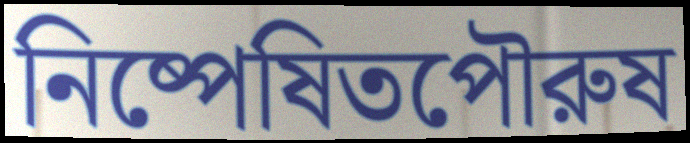
নিষ্পেষিতপৌরুষ